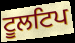
ਟੂਲਟਿਪ